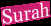
Surah